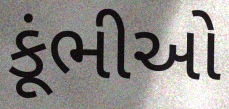
કૂંભીઓ